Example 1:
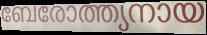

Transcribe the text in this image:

ബേരോത്ത്യനായ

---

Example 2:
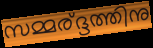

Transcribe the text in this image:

സമ്മര്ദ്ദത്തിനു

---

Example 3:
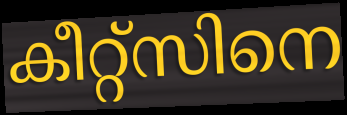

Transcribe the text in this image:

കീറ്റ്സിനെ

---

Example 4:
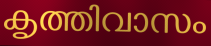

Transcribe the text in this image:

കൃത്തിവാസം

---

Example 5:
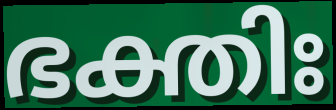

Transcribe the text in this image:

ഭക്തിഃ